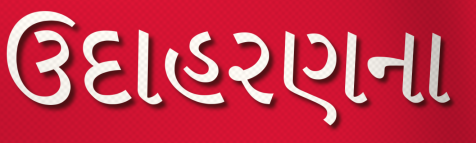
ઉદાહરણના